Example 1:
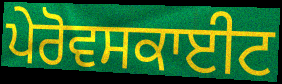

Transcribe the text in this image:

ਪੇਰੋਵਸਕਾਈਟ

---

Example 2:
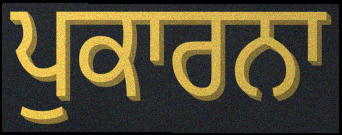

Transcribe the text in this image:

ਪੁਕਾਰਨਾ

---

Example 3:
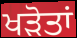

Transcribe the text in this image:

ਖੜੋਤਾਂ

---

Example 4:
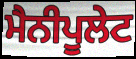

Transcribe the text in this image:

ਮੈਨੀਪੂਲੇਟ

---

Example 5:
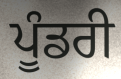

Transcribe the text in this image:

ਪੂੰਡਰੀ